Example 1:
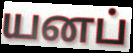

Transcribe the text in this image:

யனப்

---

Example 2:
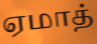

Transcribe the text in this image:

ஏமாத்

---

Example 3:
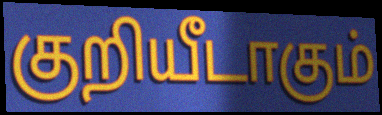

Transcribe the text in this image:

குறியீடாகும்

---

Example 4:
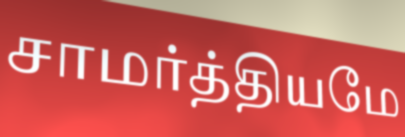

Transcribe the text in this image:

சாமர்த்தியமே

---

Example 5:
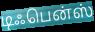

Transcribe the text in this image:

டிஃபென்ஸ்